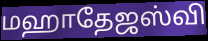
மஹாதேஜஸ்வி